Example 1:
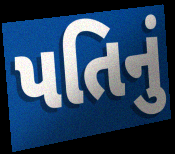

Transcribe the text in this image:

પતિનું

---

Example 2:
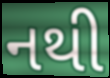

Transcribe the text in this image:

નથી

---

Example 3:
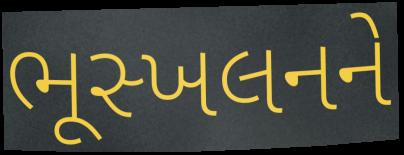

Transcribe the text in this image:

ભૂસ્ખલનને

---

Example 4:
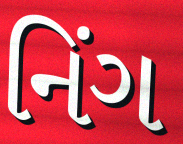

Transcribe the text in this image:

નિંગ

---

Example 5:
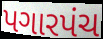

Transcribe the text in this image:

પગારપંચ